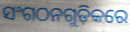
ସଂଗଠନଗୁଡ଼ିକରେ